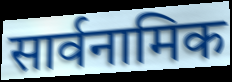
सार्वनामिक